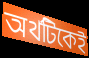
অর্থটিকেই